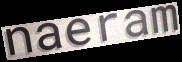
naeram